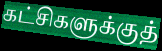
கட்சிகளுக்குத்